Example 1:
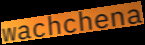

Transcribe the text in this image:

wachchena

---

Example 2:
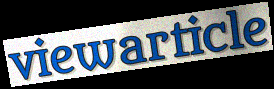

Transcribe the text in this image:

viewarticle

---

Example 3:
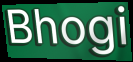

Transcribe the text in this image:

Bhogi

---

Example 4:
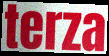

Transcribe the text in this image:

terza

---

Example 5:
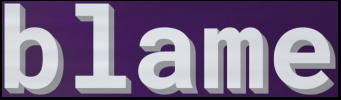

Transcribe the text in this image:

blame